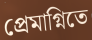
প্রেমাগ্নিতে